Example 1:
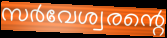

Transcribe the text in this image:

സർവേശ്വരന്റെ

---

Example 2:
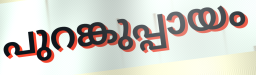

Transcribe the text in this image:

പുറങ്കുപ്പായം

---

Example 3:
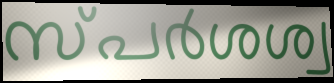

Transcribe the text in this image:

സ്പർശശ്വ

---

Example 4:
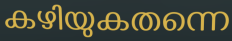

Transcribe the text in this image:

കഴിയുകതന്നെ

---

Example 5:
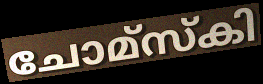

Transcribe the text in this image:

ചോമ്സ്കി